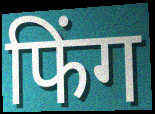
फिंग